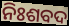
ନିଃଶବଦ